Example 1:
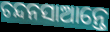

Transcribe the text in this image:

ଚନ୍ଦନସାଆନ୍ତେ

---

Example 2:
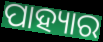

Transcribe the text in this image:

ପାହ୍ୟାର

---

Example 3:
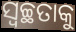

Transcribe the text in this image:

ସ୍ବଚ୍ଛତାକୁ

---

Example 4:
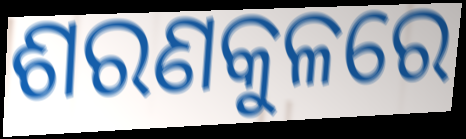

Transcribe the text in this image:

ଶରଣକୁଳରେ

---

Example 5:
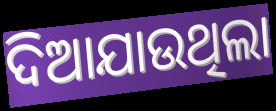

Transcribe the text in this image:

ଦିଆଯାଉଥିଲା